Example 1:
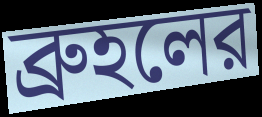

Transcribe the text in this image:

ব্রুহলের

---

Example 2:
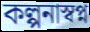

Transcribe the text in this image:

কল্পনাস্বপ্ন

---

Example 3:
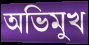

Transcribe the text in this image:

অভিমুখ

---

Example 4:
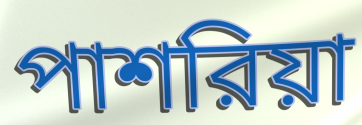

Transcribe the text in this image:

পাশরিয়া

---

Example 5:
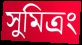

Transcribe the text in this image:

সুমিত্রং